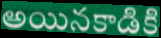
అయినకాడికి